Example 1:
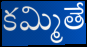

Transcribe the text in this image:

కమ్మితే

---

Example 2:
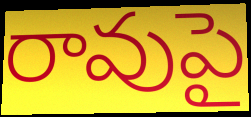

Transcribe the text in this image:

రావుపై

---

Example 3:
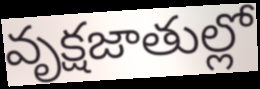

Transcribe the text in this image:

వృక్షజాతుల్లో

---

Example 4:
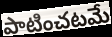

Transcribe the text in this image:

పాటించటమే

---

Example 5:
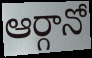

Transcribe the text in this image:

ఆర్గానో